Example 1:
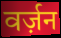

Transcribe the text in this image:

वर्ज़न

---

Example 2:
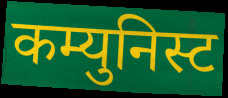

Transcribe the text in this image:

कम्युनिस्ट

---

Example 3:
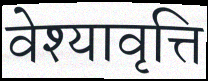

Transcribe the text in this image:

वेश्यावृत्ति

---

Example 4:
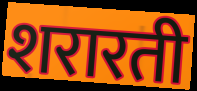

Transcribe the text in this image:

शरारती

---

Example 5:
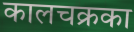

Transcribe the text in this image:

कालचक्रका